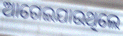
ଆଗେଇଯାଉଥିଲେ